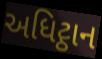
અધિટ્ઠાન